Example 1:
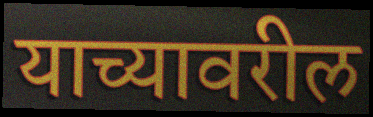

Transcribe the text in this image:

याच्यावरील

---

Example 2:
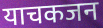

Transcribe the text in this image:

याचकजन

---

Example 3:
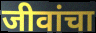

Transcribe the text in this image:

जीवांचा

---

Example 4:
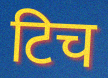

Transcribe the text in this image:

टिच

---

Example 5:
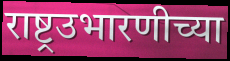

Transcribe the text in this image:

राष्ट्रउभारणीच्या